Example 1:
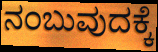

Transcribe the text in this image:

ನಂಬುವುದಕ್ಕೆ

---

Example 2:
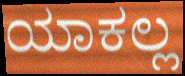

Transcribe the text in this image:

ಯಾಕಲ್ಲ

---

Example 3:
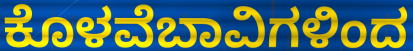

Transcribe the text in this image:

ಕೊಳವೆಬಾವಿಗಳಿಂದ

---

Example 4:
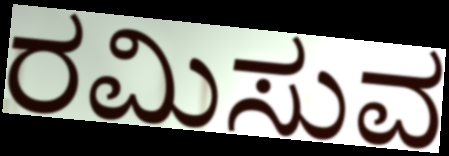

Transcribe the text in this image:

ರಮಿಸುವ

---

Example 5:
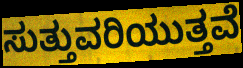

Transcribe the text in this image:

ಸುತ್ತುವರಿಯುತ್ತವೆ